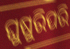
ଘୁଷୁରିପରି